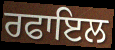
ਰਫਾਇਲ